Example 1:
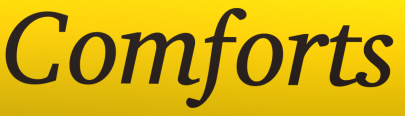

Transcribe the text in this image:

Comforts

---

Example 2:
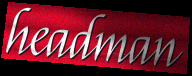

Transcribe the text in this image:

headman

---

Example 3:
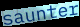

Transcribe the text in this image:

saunter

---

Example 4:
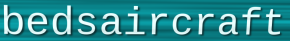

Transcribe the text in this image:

bedsaircraft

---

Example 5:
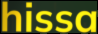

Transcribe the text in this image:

hissa